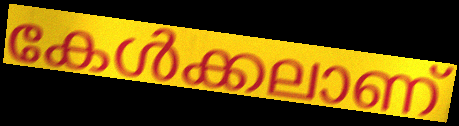
കേൾക്കലാണ്